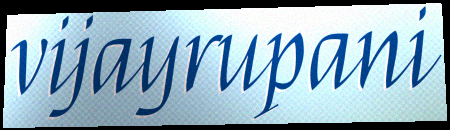
vijayrupani